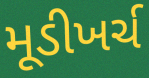
મૂડીખર્ચ